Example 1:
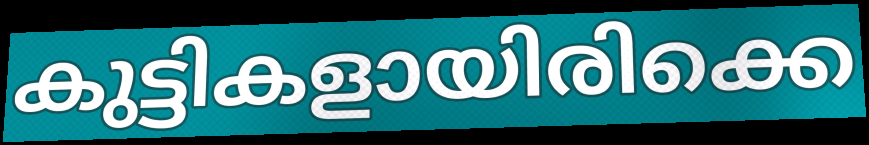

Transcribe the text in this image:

കുട്ടികളായിരിക്കെ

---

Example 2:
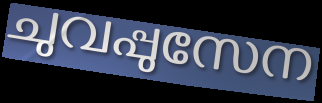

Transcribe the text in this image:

ചുവപ്പുസേന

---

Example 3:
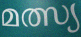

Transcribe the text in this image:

മത്സ്യ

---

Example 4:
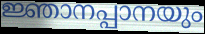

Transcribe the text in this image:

ജ്ഞാനപ്പാനയും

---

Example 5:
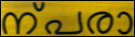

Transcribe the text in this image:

ന്പരാ